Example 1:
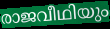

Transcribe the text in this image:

രാജവീഥിയും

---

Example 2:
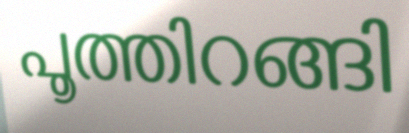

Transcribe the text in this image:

പൂത്തിറങ്ങി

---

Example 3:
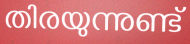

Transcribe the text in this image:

തിരയുന്നുണ്ട്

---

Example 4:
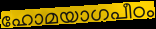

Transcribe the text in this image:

ഹോമയാഗപീഠം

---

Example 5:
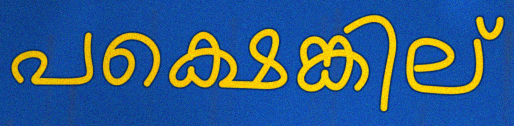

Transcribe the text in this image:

പക്ഷെങ്കില്